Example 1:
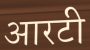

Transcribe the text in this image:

आरटी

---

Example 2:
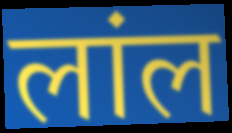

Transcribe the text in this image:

लांल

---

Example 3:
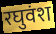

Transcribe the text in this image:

रघुवंश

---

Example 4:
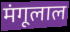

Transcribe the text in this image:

मंगूलाल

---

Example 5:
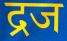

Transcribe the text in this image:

द्रज